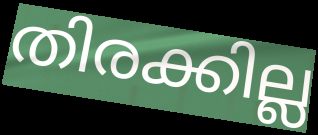
തിരക്കില്ല